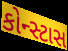
કોન્સ્ટાસ